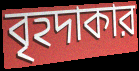
বৃহদাকার